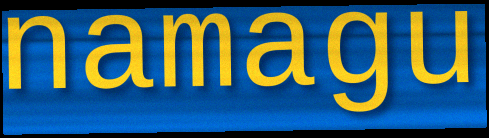
namagu